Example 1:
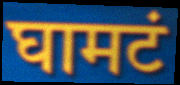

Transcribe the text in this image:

घामटं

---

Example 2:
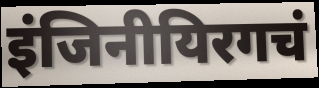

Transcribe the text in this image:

इंजिनीयिरगचं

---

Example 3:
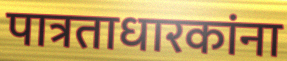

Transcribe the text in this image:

पात्रताधारकांना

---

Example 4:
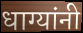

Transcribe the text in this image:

धाग्यांनी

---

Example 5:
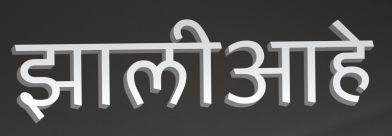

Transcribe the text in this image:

झालीआहे